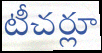
టీచర్లూ